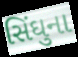
સિંઘુના